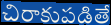
చిరాకుపడితే